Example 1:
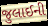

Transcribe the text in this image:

જુલાઈની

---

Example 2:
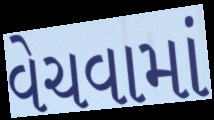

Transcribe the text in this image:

વેચવામાં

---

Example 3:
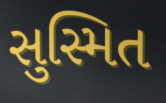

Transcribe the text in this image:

સુસ્મિત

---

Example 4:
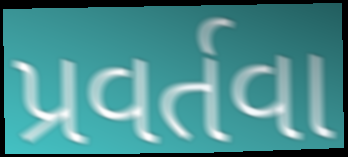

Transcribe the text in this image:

પ્રવર્તવા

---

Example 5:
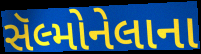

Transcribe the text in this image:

સૅલ્મોનેલાના